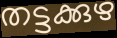
തട്ടക്കുഴ